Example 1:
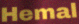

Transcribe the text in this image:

Hemal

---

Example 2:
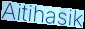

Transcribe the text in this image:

Aitihasik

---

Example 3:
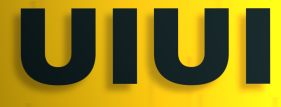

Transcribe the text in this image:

UIUI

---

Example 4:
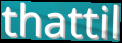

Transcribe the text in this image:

thattil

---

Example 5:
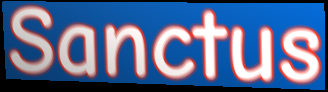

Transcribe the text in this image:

Sanctus